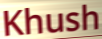
Khush